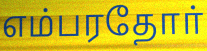
எம்பரதோர்